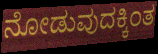
ನೋಡುವುದಕ್ಕಿಂತ